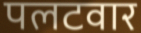
पलटवार